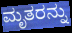
ಮೃತರನ್ನು